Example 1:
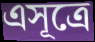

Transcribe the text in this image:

এসূত্রে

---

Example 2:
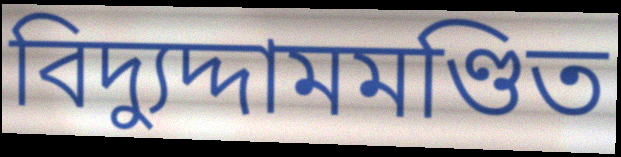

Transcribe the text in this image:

বিদ্যুদ্দামমণ্ডিত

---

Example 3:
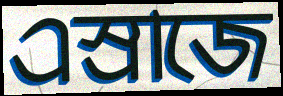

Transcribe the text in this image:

এস্রাজে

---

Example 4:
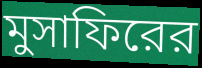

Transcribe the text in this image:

মুসাফিরের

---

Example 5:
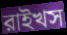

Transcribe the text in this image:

রাইখস